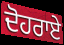
ਦੋਹਰਾਏ